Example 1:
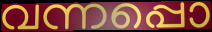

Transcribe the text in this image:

വന്നപ്പൊ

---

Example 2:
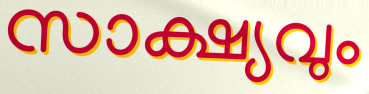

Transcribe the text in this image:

സാക്ഷ്യവും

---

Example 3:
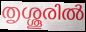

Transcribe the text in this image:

തൃശ്ശൂരിൽ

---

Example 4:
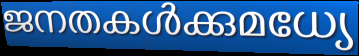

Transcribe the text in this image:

ജനതകൾക്കുമധ്യേ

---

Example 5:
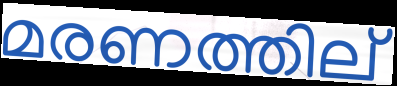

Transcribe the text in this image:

മരണത്തില്